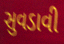
સુવડાવી